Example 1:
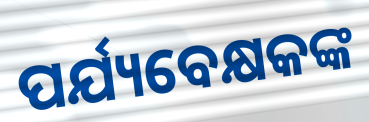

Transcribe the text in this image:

ପର୍ଯ୍ୟବେକ୍ଷକଙ୍କ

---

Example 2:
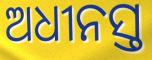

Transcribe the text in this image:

ଅଧୀନସ୍ତ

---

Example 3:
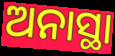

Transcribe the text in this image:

ଅନାସ୍ଥା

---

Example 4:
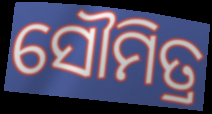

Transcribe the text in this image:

ସୌମିତ୍ର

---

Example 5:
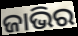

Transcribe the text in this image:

ଜାଭିର